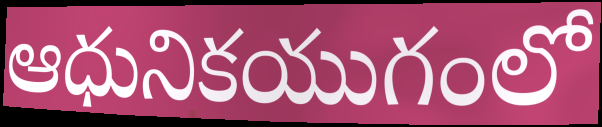
ఆధునికయుగంలో